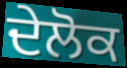
ਦੇਲੋਕ